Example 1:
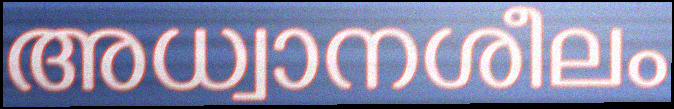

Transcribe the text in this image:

അധ്വാനശീലം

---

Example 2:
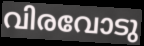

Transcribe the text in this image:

വിരവോടു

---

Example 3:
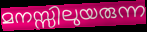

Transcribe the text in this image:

മനസ്സിലുയരുന്ന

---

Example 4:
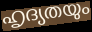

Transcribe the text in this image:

ഹൃദ്യതയും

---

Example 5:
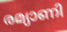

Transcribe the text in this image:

രമ്യാണി